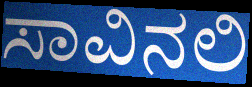
ಸಾವಿನಲಿ